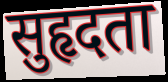
सुहृदता